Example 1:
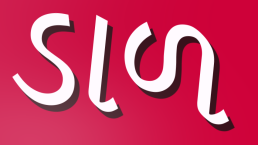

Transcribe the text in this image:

ડાળ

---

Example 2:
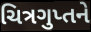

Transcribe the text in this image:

ચિત્રગુપ્તને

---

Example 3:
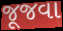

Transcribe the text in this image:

જૂજવા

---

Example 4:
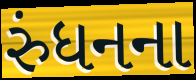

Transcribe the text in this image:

રુંધનના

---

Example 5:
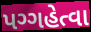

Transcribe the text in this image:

પગ્ગહેત્વા